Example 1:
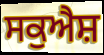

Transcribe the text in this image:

ਸਕੁਐਸ਼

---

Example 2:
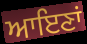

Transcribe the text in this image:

ਆਇਣਾਂ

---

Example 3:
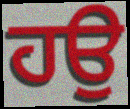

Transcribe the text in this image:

ਹਉ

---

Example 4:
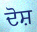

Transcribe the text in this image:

ਦੋਸ਼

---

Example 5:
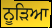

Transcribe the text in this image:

ਨੂੜਿਆ